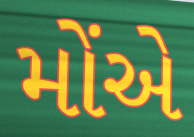
મોંએ